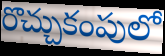
రొచ్చుకంపులో